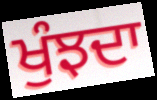
ਖੁੰਝਦਾ